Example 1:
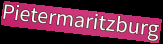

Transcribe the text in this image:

Pietermaritzburg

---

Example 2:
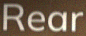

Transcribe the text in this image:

Rear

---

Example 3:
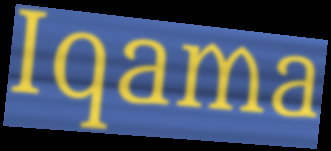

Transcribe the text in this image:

Iqama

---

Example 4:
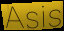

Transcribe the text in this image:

Asis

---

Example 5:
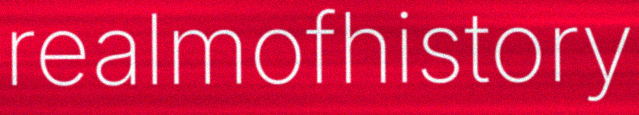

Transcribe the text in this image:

realmofhistory